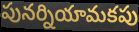
పునర్నియామకపు